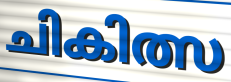
ചികിത്സ